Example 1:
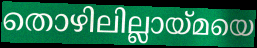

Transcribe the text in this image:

തൊഴിലില്ലായ്മയെ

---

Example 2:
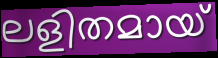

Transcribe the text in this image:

ലളിതമായ്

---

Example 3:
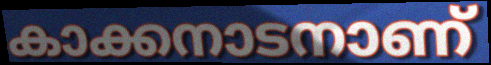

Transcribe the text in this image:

കാക്കനാടനാണ്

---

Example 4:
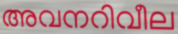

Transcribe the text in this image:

അവനറിവീല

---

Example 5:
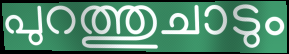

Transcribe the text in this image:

പുറത്തുചാടും